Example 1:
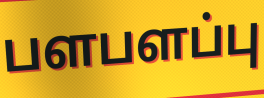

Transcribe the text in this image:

பளபளப்பு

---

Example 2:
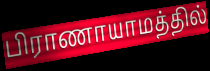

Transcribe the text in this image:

பிராணாயாமத்தில்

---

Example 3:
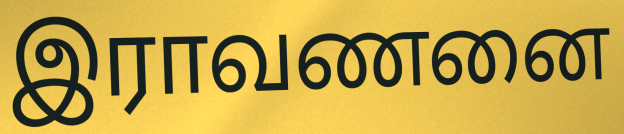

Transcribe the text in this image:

இராவணனை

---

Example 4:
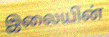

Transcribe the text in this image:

இலையின்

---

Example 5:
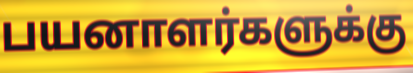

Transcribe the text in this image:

பயனாளர்களுக்கு